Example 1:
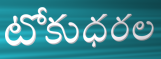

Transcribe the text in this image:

టోకుధరల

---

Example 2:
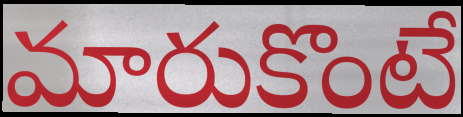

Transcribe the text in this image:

మారుకొంటే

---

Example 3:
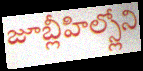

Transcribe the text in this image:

జూబ్లీహిల్స్లోని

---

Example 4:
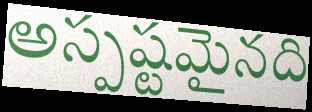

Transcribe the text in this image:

అస్పష్టమైనది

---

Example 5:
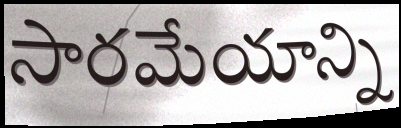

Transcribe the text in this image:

సారమేయాన్ని